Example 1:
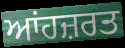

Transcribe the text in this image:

ਆਂਹਜ਼ਰਤ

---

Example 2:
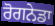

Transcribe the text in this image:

ਰੋਗਨੇਡਾ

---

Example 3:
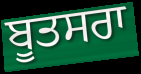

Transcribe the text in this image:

ਬੂਤਸਰਾ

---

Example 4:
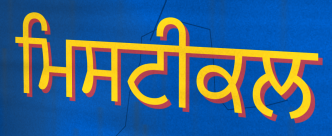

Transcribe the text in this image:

ਮਿਸਟੀਕਲ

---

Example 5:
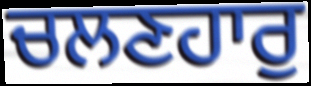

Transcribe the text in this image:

ਚਲਣਹਾਰੁ